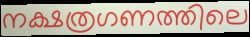
നക്ഷത്രഗണത്തിലെ